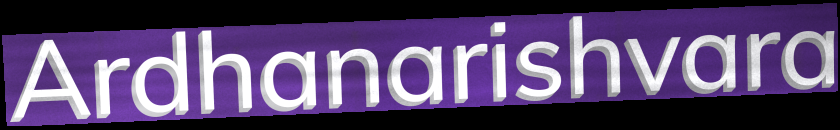
Ardhanarishvara